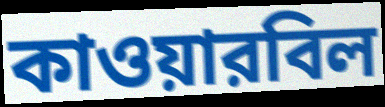
কাওয়ারবিল